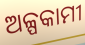
ଅଳ୍ପକାମୀ